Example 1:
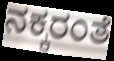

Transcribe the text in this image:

ನಕ್ಕರಂತೆ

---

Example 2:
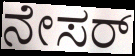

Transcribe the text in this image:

ನೇಸರ್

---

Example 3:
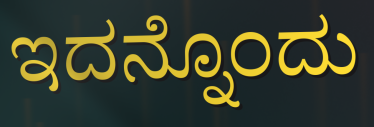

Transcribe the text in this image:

ಇದನ್ನೊಂದು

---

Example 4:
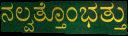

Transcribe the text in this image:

ನಲ್ವತ್ತೊಂಭತ್ತು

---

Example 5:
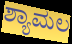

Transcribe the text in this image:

ಶ್ಯಾಮಲ